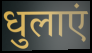
धुलाएं